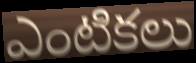
ఎంటికలు